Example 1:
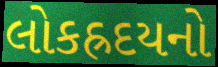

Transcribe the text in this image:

લોકહ્રદયનો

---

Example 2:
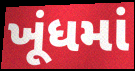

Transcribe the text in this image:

ખૂંધમાં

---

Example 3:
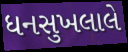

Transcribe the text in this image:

ધનસુખલાલે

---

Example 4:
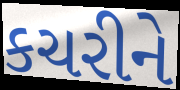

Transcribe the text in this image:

કચરીને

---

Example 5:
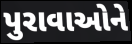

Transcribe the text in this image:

પુરાવાઓને